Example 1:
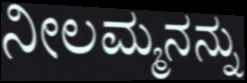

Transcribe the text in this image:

ನೀಲಮ್ಮನನ್ನು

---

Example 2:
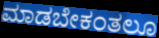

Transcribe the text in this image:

ಮಾಡಬೇಕಂತಲೂ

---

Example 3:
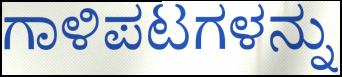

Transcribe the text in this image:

ಗಾಳಿಪಟಗಳನ್ನು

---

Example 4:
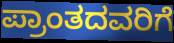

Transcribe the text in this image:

ಪ್ರಾಂತದವರಿಗೆ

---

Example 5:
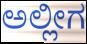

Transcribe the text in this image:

ಅಲ್ಲೀಗ